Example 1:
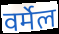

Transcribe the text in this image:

वर्मेल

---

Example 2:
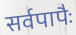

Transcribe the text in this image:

सर्वपापैः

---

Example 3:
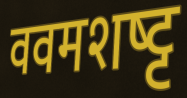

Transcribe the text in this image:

ववमशष्ट्ट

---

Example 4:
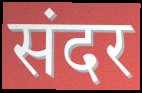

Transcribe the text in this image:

संदर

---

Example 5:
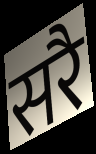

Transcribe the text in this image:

सरै